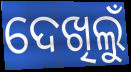
ଦେଖିଲୁଁ